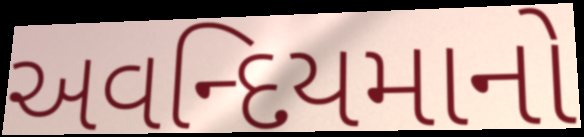
અવન્દિયમાનો